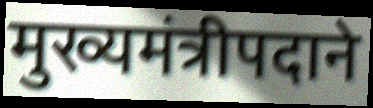
मुख्यमंत्रीपदाने